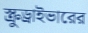
স্ক্রুড্রাইভারের